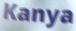
Kanya